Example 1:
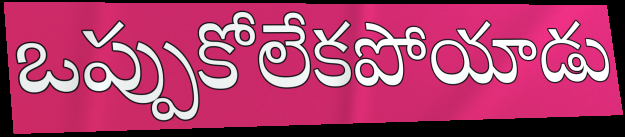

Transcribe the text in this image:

ఒప్పుకోలేకపోయాడు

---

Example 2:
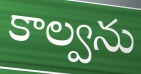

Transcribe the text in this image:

కాల్వను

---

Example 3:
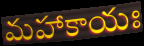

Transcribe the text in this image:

మహాకాయః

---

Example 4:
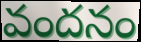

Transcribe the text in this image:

వందనం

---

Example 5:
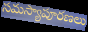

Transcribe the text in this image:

సమస్యాపూరణలు